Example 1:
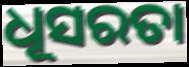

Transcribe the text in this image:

ଧୂସରତା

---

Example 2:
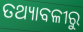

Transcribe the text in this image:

ତଥ୍ୟାବଳୀରୁ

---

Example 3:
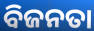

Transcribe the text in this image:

ବିଜନତା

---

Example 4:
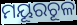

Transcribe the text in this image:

ମୟୂରଚୂଳ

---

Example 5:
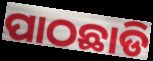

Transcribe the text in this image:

ପାଠଛାଡି